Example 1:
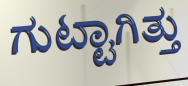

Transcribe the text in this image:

ಗುಟ್ಟಾಗಿತ್ತು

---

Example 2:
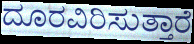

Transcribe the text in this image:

ದೂರವಿರಿಸುತ್ತಾರೆ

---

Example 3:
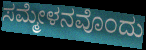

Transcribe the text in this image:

ಸಮ್ಮೇಳನವೊಂದು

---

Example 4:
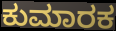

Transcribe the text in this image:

ಕುಮಾರಕ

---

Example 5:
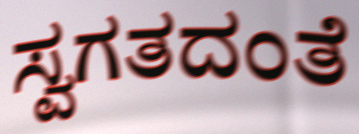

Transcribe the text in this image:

ಸ್ವಗತದಂತೆ